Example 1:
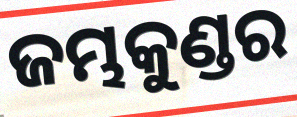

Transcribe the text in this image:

ଜମ୍ଭକୁଣ୍ଡର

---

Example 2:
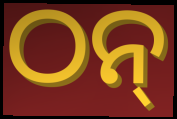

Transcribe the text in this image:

ଠନ୍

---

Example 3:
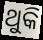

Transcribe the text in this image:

ଥୁକି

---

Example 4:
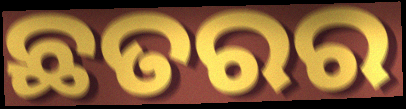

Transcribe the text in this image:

ଛତରର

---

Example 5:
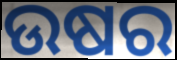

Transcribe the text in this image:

ଉଷର